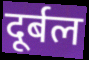
दूर्बल